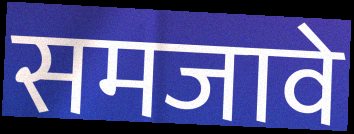
समजावे